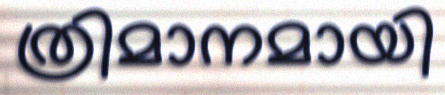
ത്രിമാനമായി